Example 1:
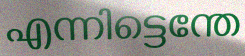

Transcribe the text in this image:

എന്നിട്ടെന്തേ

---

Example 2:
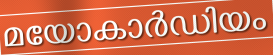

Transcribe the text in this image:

മയോകാർഡിയം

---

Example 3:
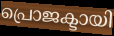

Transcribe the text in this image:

പ്രൊജക്ടായി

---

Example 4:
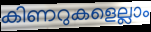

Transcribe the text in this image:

കിണറുകളെല്ലാം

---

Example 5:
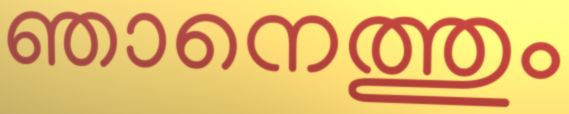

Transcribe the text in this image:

ഞാനെത്തും